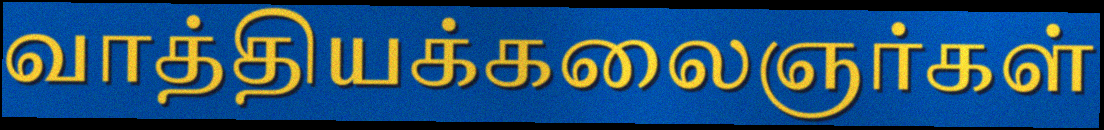
வாத்தியக்கலைஞர்கள்